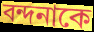
বন্দনাকে